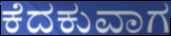
ಕೆದಕುವಾಗ